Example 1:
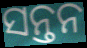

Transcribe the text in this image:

ସନ୍ତନ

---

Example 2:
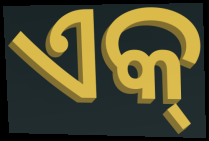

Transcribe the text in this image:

ଏକ୍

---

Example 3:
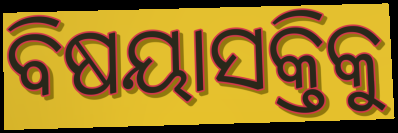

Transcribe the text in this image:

ବିଷୟାସକ୍ତିକୁ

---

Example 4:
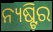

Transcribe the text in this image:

ନ୍ୟଷ୍ଟିର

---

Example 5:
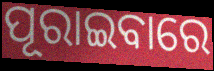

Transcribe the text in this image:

ପୂରାଇବାରେ